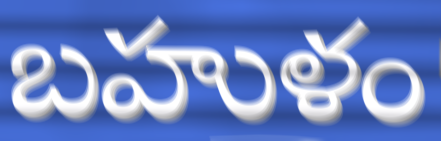
బహుళం